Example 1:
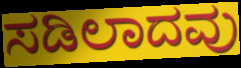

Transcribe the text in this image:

ಸಡಿಲಾದವು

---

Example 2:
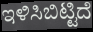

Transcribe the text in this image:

ಇಳಿಸಿಬಿಟ್ಟಿದೆ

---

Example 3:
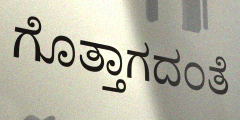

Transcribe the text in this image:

ಗೊತ್ತಾಗದಂತೆ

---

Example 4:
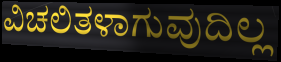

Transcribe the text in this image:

ವಿಚಲಿತಳಾಗುವುದಿಲ್ಲ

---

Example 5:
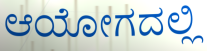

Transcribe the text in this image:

ಆಯೋಗದಲ್ಲಿ